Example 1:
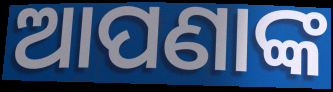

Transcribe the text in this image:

ଆପଣାଙ୍କ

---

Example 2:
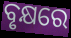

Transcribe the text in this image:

ବୃକ୍ଷରେ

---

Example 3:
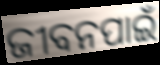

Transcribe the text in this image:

ଜୀବନପାଇଁ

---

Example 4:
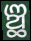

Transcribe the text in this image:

ଞ୍ଛ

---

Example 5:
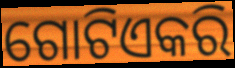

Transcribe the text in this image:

ଗୋଟିଏକରି